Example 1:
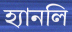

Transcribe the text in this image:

হ্যানলি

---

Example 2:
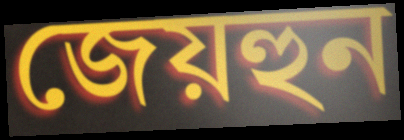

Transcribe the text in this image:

জেয়হুন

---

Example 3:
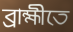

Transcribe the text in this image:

ব্রাহ্মীতে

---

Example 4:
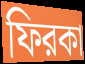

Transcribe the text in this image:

ফিরকা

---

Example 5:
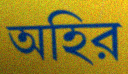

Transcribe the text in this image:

অহির